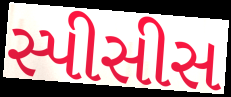
સ્પીસીસ